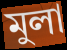
মুলা